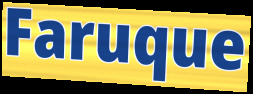
Faruque